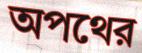
অপথের